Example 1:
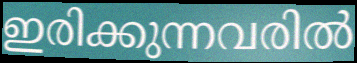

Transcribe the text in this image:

ഇരിക്കുന്നവരിൽ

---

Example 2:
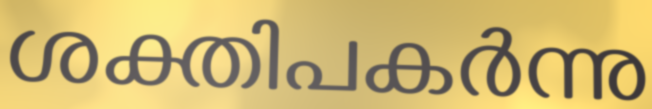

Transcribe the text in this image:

ശക്തിപകർന്നു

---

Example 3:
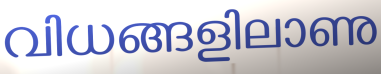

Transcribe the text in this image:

വിധങ്ങളിലാണു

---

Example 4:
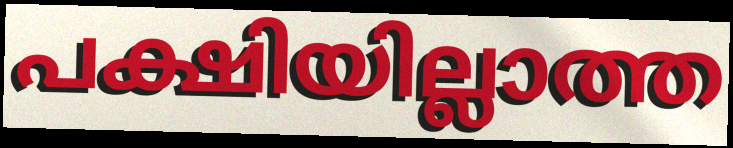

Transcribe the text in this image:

പക്ഷിയില്ലാത്ത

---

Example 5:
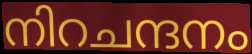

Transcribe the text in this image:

നിറചന്ദനം